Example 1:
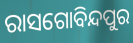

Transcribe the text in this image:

ରାସଗୋବିନ୍ଦପୁର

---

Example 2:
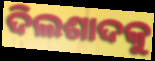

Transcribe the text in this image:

ଦିଲଶାଦକୁ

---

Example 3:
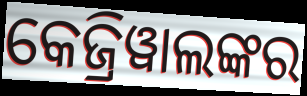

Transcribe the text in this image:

କେଜ୍ରିୱାଲଙ୍କର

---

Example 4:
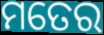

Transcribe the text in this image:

ମତେର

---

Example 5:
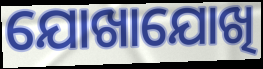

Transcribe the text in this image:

ଯୋଖାଯୋଖି